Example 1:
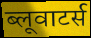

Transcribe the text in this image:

ब्लूवाटर्स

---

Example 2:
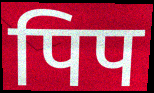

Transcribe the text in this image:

पिप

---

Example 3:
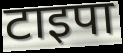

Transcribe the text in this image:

टाइपा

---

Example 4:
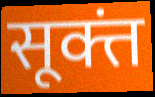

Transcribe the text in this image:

सूक्तं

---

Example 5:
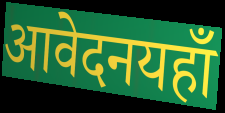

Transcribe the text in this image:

आवेदनयहाँ